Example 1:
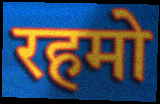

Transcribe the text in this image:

रहमो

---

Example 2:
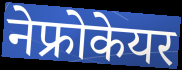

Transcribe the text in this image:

नेफ्रोकेयर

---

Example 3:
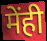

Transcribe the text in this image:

मेंही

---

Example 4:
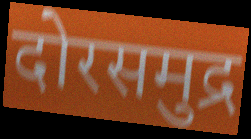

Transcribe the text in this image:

दोरसमुद्र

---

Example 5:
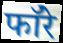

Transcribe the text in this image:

फॉरे